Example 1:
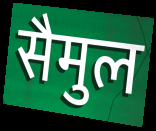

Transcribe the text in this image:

सैमुल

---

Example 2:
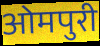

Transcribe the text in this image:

ओमपुरी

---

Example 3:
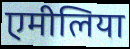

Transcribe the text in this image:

एमीलिया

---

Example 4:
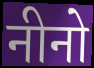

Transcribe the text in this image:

नीनो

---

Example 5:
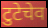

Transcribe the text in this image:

टुटेचेव